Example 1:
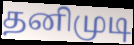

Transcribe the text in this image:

தனிமுடி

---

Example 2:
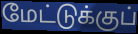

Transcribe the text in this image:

மேட்டுக்குப்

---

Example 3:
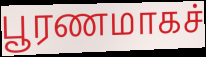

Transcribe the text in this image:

பூரணமாகச்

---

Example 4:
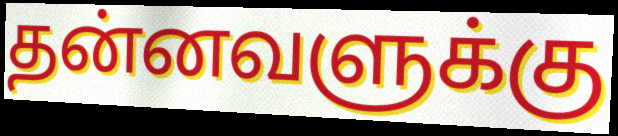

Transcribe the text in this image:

தன்னவளுக்கு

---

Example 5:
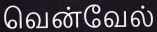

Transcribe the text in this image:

வென்வேல்